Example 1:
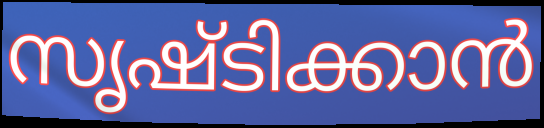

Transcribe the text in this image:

സൃഷ്ടിക്കാൻ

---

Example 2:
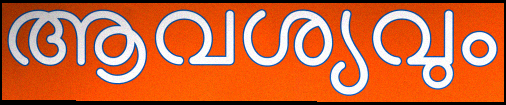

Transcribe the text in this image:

ആവശ്യവും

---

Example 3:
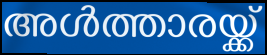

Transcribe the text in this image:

അൾത്താരയ്ക്ക്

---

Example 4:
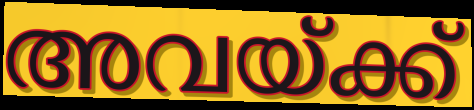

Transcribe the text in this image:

അവയ്ക്ക്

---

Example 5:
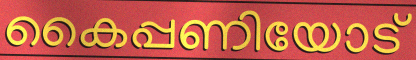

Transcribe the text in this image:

കൈപ്പണിയോട്